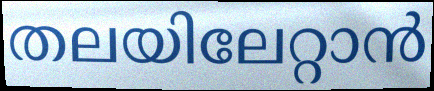
തലയിലേറ്റാൻ